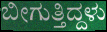
ಬೀಗುತ್ತಿದ್ದಳು